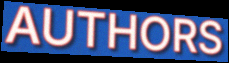
AUTHORS